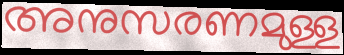
അനുസരണമുള്ള